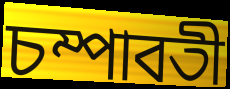
চম্পাবতী